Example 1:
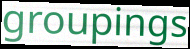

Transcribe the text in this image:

groupings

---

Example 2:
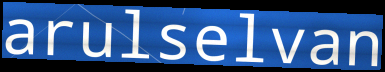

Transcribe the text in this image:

arulselvan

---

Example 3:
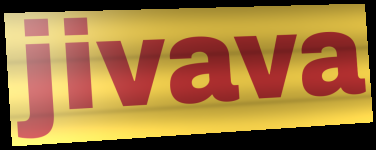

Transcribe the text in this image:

jivava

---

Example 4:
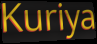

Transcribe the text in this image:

Kuriya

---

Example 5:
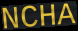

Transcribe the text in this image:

NCHA